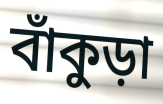
বাঁকুড়া